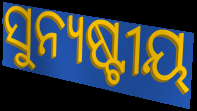
ସୁନ୍ୟଷ୍ଟୀୟ